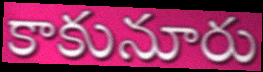
కాకునూరు